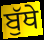
ਬੁੱਥੇ